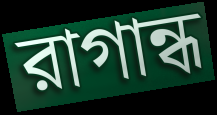
রাগান্ধ